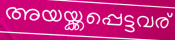
അയയ്ക്കപ്പെട്ടവര്